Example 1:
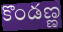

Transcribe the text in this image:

కొండణ్ణ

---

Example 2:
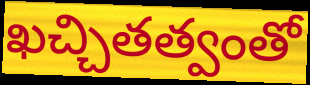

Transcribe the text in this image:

ఖచ్చితత్వంతో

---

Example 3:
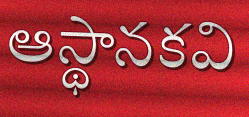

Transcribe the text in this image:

ఆస్థానకవి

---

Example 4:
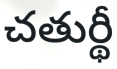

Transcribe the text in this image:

చతుర్థీ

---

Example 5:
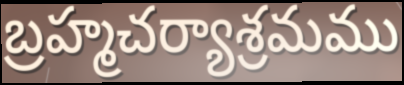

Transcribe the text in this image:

బ్రహ్మచర్యాశ్రమము